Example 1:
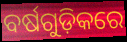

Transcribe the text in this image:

ବର୍ଷଗୁଡ଼ିକରେ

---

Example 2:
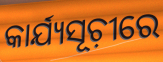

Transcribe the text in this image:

କାର୍ଯ୍ୟସୂଚ଼ୀରେ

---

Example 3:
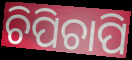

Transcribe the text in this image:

ଚିପିଚାପି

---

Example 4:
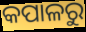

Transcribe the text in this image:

କପାଳରୁ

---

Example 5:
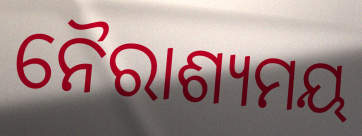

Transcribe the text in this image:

ନୈରାଶ୍ୟମୟ